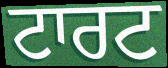
ਟਾਰਟ